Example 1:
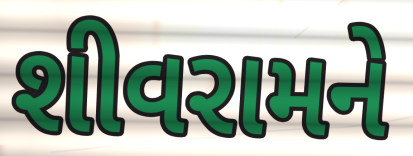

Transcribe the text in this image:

શીવરામને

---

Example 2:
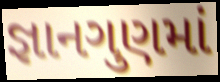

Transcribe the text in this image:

જ્ઞાનગુણમાં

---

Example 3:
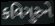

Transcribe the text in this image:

કવિગુરુને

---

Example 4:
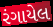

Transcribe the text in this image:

રંગાયેલ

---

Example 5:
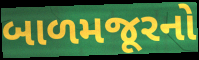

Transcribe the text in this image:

બાળમજૂરનો